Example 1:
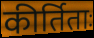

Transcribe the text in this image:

कीर्तिताः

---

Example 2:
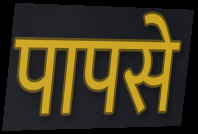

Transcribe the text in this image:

पापसे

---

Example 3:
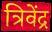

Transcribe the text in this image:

त्रिवेंद्र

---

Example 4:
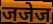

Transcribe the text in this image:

जजेज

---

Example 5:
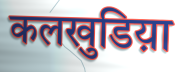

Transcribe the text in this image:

कलखुडिय़ा